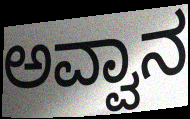
ಅವ್ವಾನ